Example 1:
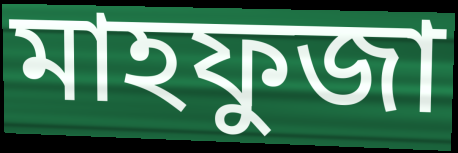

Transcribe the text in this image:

মাহফুজা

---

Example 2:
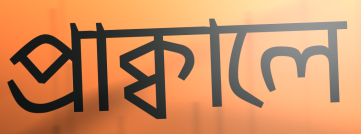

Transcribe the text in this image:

প্রাক্বালে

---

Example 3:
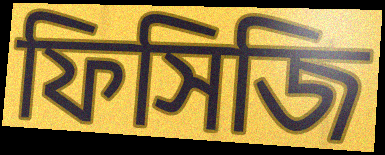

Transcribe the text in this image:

ফিসিজি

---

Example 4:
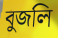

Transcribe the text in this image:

বুজলি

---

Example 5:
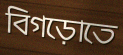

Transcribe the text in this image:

বিগড়োতে